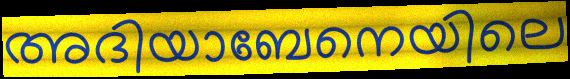
അദിയാബേനെയിലെ